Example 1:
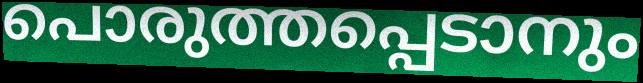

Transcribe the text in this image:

പൊരുത്തപ്പെടാനും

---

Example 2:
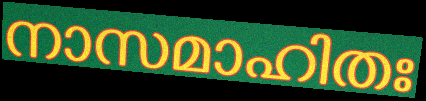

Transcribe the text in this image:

നാസമാഹിതഃ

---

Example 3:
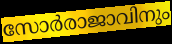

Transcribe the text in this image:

സോർരാജാവിനും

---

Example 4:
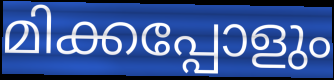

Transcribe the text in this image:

മിക്കപ്പോളും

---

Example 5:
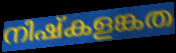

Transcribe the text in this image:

നിഷ്‌കളങ്കത